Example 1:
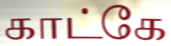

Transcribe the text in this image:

காட்கே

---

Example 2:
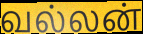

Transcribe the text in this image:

வல்லன்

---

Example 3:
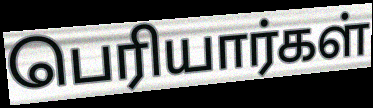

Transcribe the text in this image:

பெரியார்கள்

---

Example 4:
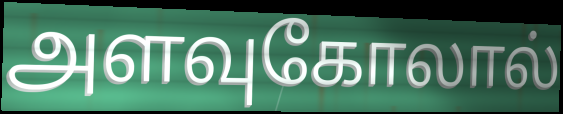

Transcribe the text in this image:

அளவுகோலால்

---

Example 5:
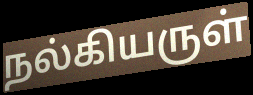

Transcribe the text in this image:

நல்கியருள்